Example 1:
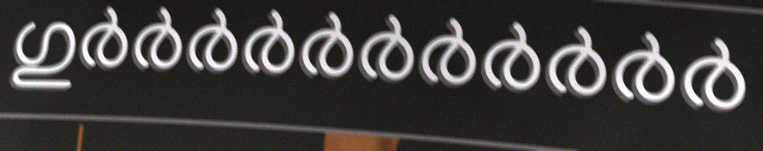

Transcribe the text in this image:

ഗുർർർർർർർർർർർ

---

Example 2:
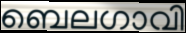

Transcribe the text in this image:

ബെലഗാവി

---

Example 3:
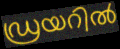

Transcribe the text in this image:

ഡ്രയറിൽ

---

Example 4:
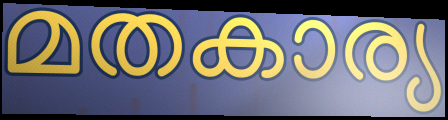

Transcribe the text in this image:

മതകാര്യ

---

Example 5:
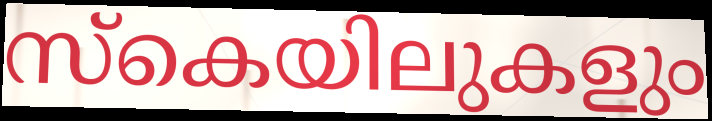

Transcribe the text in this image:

സ്കെയിലുകളും